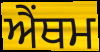
ਐਂਥਮ